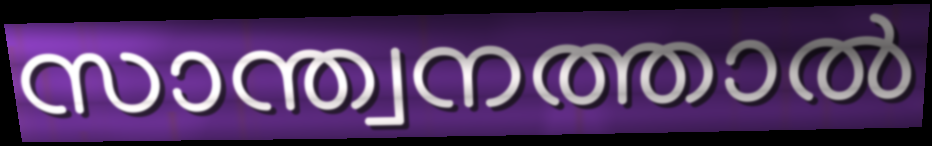
സാന്ത്വനത്താൽ